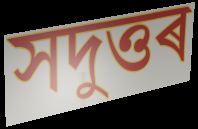
সদুত্তৰ